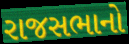
રાજસભાનો